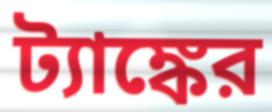
ট্যাঙ্কের